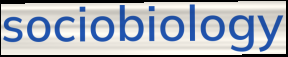
sociobiology